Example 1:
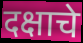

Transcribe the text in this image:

दक्षाचे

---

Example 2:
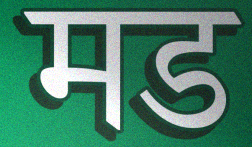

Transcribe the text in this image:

मड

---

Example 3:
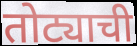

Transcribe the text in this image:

तोट्याची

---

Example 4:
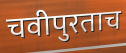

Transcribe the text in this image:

चवीपुरताच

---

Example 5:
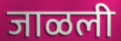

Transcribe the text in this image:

जाळली